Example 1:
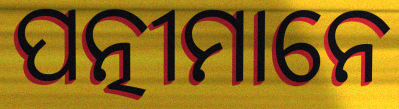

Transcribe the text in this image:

ପତ୍ନୀମାନେ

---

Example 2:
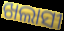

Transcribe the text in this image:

ଖଲାସୀ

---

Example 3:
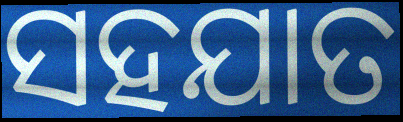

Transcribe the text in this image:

ସହଯାତ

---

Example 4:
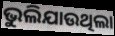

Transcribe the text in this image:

ଭୁଲିଯାଉଥିଲା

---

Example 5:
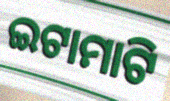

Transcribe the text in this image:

ଇଟାମାଟି